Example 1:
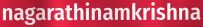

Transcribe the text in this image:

nagarathinamkrishna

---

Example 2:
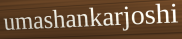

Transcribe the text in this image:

umashankarjoshi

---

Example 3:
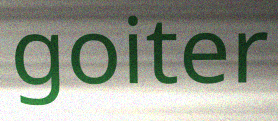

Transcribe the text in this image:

goiter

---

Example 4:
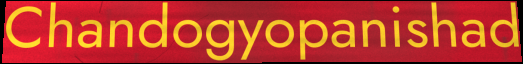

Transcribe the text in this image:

Chandogyopanishad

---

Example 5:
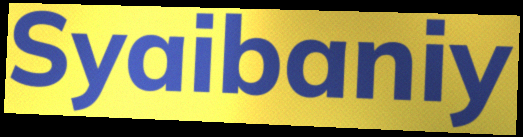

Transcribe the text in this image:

Syaibaniy